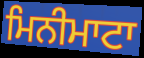
ਮਿਨੀਮਾਟਾ